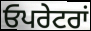
ਓਪਰੇਟਰਾਂ